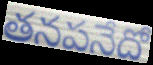
తనపనేదో